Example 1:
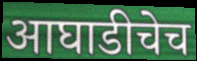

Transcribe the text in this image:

आघाडीचेच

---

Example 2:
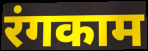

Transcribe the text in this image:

रंगकाम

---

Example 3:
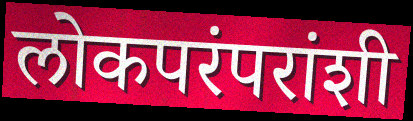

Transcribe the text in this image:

लोकपरंपरांशी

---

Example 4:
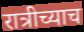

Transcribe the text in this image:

रात्रीच्याच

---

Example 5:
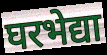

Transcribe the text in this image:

घरभेद्या